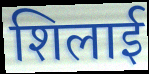
शिलाई